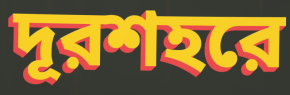
দূরশহরে